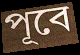
পূবে